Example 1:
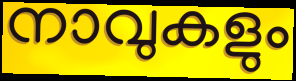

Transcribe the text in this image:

നാവുകളും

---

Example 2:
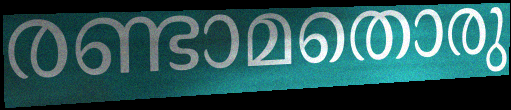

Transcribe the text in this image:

രണ്ടാമതൊരു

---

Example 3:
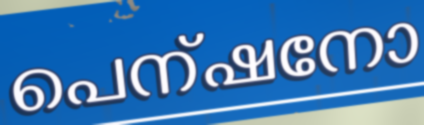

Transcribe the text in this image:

പെന്ഷനോ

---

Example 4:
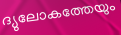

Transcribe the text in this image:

ദ്യുലോകത്തേയും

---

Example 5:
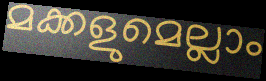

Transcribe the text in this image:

മക്കളുമെല്ലാം